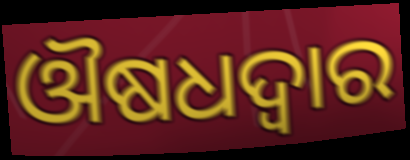
ଔଷଧଦ୍ୱାର